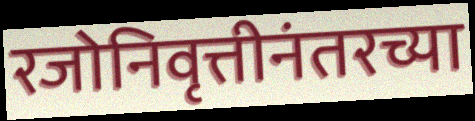
रजोनिवृत्तीनंतरच्या